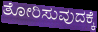
ತೋರಿಸುವುದಕ್ಕೆ